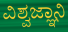
ವಿಶ್ವಜ್ಞಾನಿ